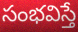
సంభవిస్తే